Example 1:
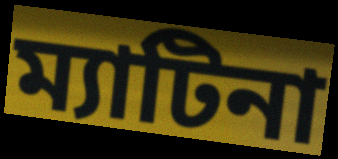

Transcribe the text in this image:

ম্যাটিনা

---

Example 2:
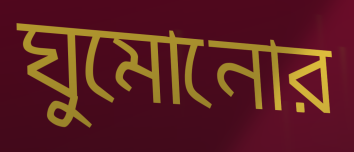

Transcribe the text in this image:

ঘুমোনোর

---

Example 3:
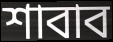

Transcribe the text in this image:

শাবাব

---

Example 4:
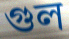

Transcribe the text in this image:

গুল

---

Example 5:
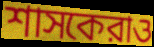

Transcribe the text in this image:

শাসকেরাও